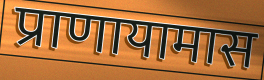
प्राणायामास